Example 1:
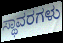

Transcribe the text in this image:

ಸ್ಥಾವರಗಳು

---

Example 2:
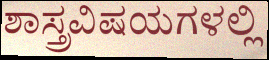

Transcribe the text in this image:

ಶಾಸ್ತ್ರವಿಷಯಗಳಲ್ಲಿ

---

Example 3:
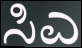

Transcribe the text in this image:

ಸಿಎ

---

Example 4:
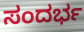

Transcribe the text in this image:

ಸಂದರ್ಭ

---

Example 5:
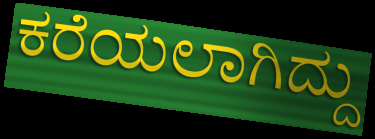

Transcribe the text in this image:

ಕರೆಯಲಾಗಿದ್ದು